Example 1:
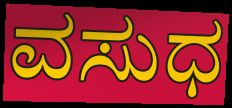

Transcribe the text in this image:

ವಸುಧ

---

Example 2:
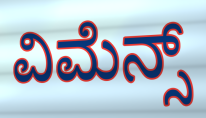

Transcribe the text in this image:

ವಿಮೆನ್ಸ್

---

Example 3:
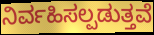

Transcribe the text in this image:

ನಿರ್ವಹಿಸಲ್ಪಡುತ್ತವೆ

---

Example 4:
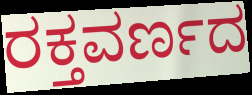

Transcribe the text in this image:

ರಕ್ತವರ್ಣದ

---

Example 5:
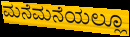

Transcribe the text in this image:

ಮನೆಮನೆಯಲ್ಲೂ